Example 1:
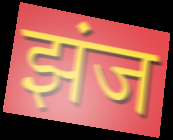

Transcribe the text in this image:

झंज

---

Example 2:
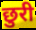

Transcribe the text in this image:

छुरी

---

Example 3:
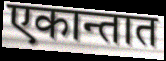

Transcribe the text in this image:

एकान्तात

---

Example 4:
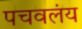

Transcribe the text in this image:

पचवलंय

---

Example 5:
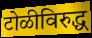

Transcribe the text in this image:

टोळीविरुद्ध